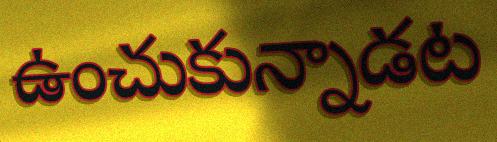
ఉంచుకున్నాడట